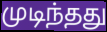
முடிந்தது